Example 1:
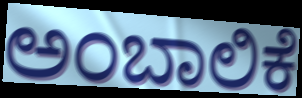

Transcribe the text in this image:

ಅಂಬಾಲಿಕೆ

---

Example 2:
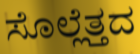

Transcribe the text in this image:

ಸೊಲ್ಲೆತ್ತದ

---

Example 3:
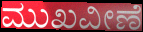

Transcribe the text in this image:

ಮುಖವೀಣೆ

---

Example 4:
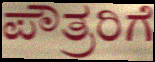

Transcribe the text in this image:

ಪೌತ್ರರಿಗೆ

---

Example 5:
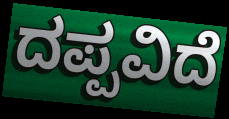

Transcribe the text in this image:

ದಪ್ಪವಿದೆ